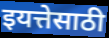
इयत्तेसाठी